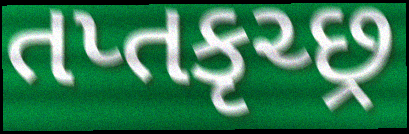
તપ્તકૃચ્છ્ર